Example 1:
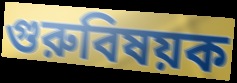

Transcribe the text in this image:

গুরুবিষয়ক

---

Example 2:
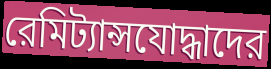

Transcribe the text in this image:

রেমিট্যান্সযোদ্ধাদের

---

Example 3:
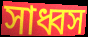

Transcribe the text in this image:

সাধ্বস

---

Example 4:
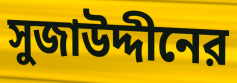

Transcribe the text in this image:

সুজাউদ্দীনের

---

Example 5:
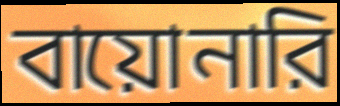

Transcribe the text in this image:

বায়োনারি